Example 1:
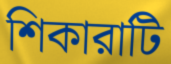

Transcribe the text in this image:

শিকারাটি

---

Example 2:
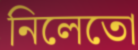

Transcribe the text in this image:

নিলেতো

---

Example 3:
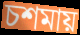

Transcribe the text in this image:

চশমায়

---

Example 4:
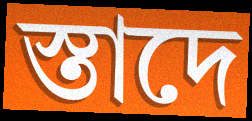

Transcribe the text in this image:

স্তাদে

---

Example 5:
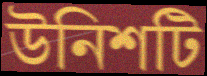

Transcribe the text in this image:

উনিশটি